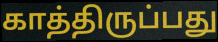
காத்திருப்பது